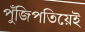
পুঁজিপতিয়েই